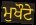
ਮੁਖੌਟੇ